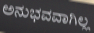
ಅನುಭವವಾಗಿಲ್ಲ